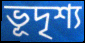
ভূদৃশ্য